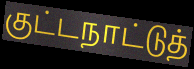
குட்டநாட்டுத்